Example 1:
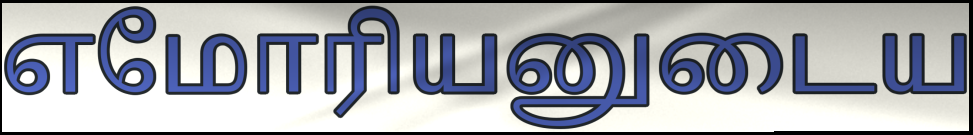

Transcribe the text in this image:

எமோரியனுடைய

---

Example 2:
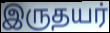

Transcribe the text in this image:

இருதயர்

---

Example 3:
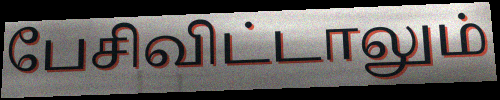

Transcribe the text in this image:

பேசிவிட்டாலும்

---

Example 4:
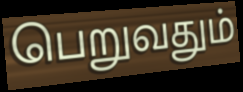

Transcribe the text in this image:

பெறுவதும்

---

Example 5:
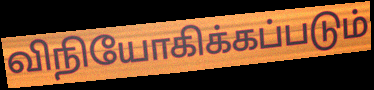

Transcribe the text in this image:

விநியோகிக்கப்படும்